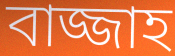
বাজ্জাহ